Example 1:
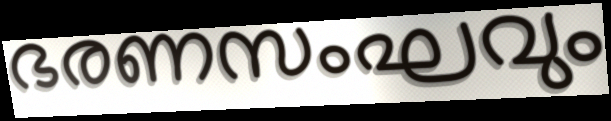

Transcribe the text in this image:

ഭരണസംഘവും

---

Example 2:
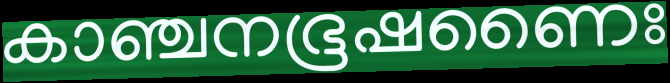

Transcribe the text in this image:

കാഞ്ചനഭൂഷണൈഃ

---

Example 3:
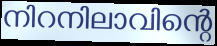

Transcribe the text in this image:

നിറനിലാവിന്റെ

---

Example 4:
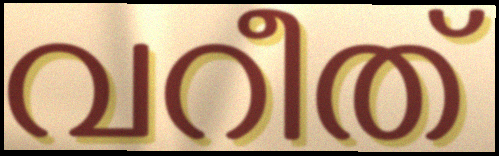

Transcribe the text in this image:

വറീത്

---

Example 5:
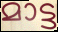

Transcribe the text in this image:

മാട്ട